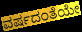
ವರ್ಷದಂತೆಯೇ